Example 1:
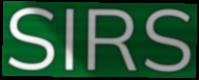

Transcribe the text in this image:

SIRS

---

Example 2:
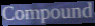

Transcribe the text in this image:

Compound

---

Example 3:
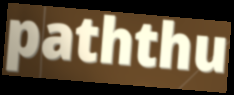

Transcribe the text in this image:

paththu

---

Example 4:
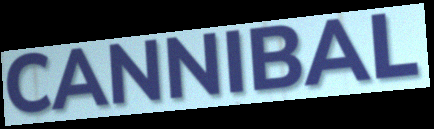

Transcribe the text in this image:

CANNIBAL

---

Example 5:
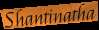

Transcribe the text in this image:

Shantinatha